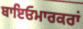
ਬਾਇਓਮਾਰਕਰਾਂ